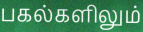
பகல்களிலும்